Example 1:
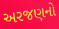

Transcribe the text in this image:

અરજણનો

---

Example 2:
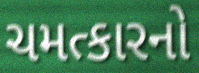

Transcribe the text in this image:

ચમત્કારનો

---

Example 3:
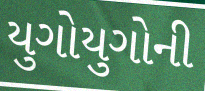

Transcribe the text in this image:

યુગોયુગોની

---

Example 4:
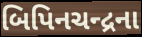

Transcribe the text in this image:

બિપિનચન્દ્રના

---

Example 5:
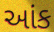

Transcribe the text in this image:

આંક